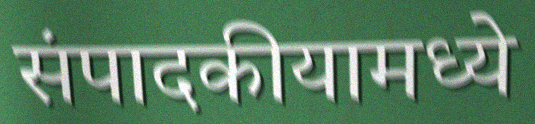
संपादकीयामध्ये